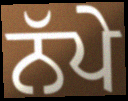
ਨੱਪੇ